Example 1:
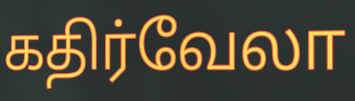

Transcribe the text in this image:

கதிர்வேலா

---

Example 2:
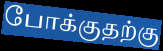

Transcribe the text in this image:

போக்குதற்கு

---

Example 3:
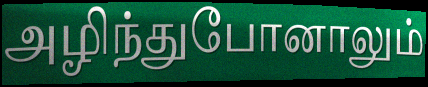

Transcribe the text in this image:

அழிந்துபோனாலும்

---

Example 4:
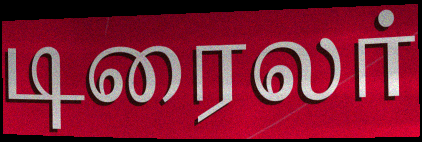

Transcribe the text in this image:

டிரைலர்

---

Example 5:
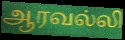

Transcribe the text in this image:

ஆரவல்லி